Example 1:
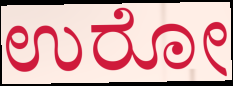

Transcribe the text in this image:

ಉರೋ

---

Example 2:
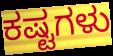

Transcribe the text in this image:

ಕಷ್ಟಗಳು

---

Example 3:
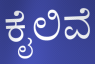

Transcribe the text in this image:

ಕೈಲಿವೆ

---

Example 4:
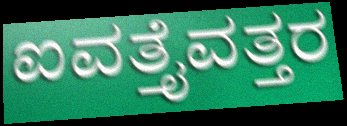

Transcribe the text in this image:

ಐವತ್ತೈವತ್ತರ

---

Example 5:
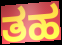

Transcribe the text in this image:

ತಹ